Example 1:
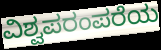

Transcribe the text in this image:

ವಿಶ್ವಪರಂಪರೆಯ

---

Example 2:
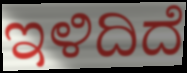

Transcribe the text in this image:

ಇಳಿದಿದೆ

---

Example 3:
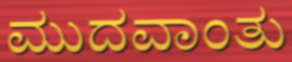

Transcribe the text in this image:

ಮುದವಾಂತು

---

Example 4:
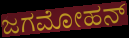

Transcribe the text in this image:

ಜಗಮೋಹನ್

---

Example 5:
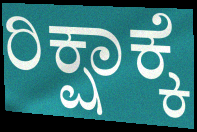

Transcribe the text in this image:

ರಿಕ್ಷಾಕ್ಕೆ